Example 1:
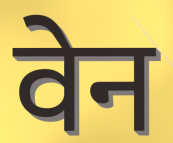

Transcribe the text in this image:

वेन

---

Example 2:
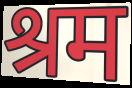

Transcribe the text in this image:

श्रम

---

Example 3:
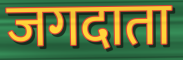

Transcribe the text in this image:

जगदाता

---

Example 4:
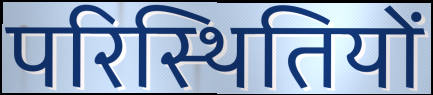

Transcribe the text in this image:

परिस्थितियों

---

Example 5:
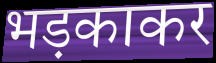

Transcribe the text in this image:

भड़काकर